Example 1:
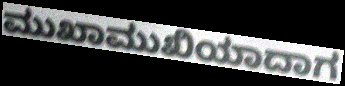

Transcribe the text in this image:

ಮುಖಾಮುಖಿಯಾದಾಗ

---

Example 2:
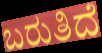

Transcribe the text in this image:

ಬರುತಿದೆ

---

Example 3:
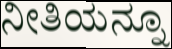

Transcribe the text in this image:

ನೀತಿಯನ್ನೂ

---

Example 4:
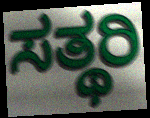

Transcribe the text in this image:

ಸತ್ಥರಿ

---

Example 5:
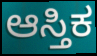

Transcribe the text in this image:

ಆಸ್ತಿಕ